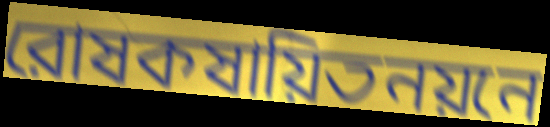
রোষকষায়িতনয়নে